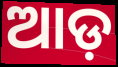
ଆଡ଼